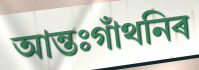
আন্তঃগাঁথনিৰ